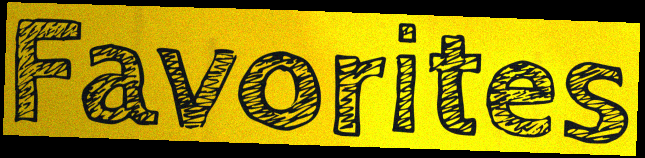
Favorites